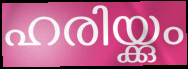
ഹരിയ്ക്കും